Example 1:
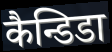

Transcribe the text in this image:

कैन्डिडा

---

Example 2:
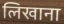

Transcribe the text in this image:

लिखाना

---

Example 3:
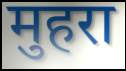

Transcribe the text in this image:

मुहरा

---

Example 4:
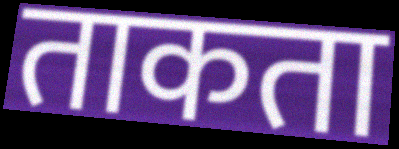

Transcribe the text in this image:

ताकता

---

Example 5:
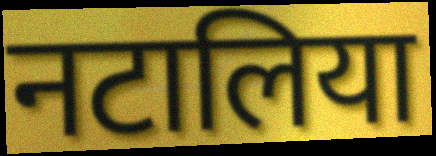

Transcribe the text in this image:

नटालिया